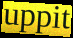
uppit